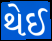
થેઈ